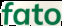
fato